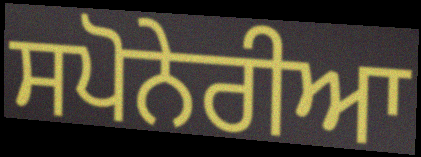
ਸਪੋਨੇਰੀਆ